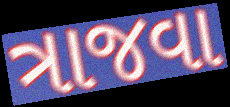
ત્રાજવા